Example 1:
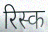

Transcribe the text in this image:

रिस्क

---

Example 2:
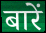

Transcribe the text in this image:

बारें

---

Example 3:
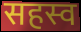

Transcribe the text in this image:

सहस्व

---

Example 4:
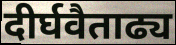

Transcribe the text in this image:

दीर्घवैताढ्य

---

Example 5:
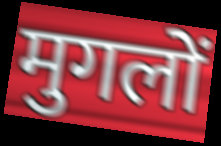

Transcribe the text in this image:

मुगलों